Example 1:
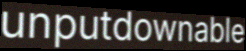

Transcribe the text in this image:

unputdownable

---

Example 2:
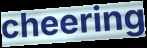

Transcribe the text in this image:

cheering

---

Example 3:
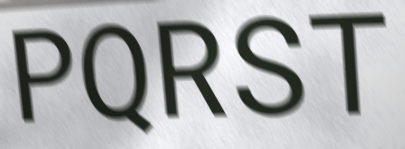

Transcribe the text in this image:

PQRST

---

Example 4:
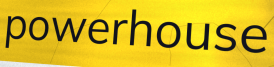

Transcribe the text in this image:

powerhouse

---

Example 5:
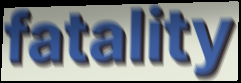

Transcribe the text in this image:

fatality